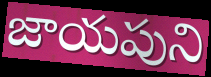
జాయపుని